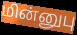
மின்னுபு